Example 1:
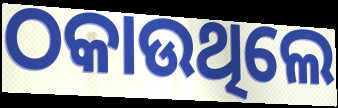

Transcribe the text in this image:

ଠକାଉଥିଲେ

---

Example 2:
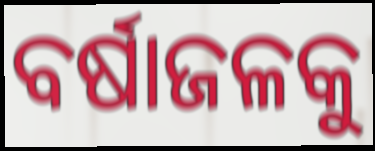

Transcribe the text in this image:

ବର୍ଷାଜଳକୁ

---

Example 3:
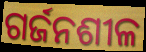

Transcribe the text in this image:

ଗର୍ଜନଶୀଳ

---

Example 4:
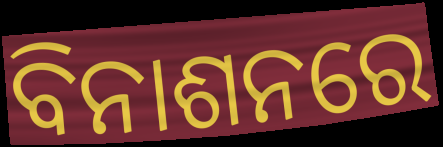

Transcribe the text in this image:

ବିନାଶନରେ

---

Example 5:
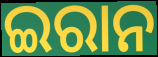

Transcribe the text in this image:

ଇରାନ